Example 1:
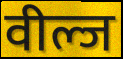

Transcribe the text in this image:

वील्ज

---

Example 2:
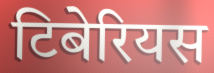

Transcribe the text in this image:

टिबेरियस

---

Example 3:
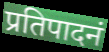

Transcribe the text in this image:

प्रतिपादनं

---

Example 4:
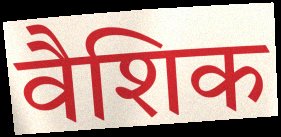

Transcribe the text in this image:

वैशिक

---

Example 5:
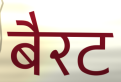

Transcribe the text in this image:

बैरट